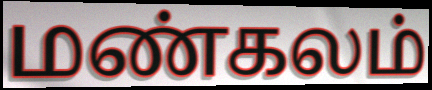
மண்கலம்